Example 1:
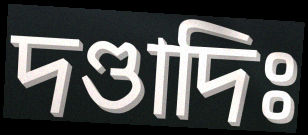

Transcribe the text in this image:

দণ্ডাদিঃ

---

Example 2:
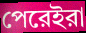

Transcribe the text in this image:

পেরেইরা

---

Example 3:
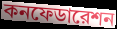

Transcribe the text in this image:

কনফেডারেশন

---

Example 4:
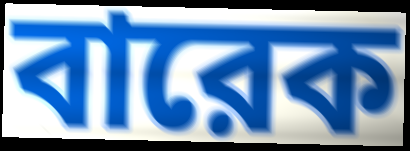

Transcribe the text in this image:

বারেক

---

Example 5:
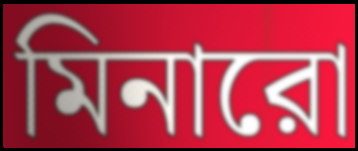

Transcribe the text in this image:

মিনারো